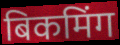
बिकमिंग